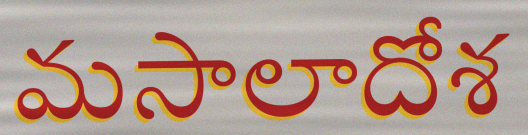
మసాలాదోశ